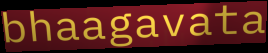
bhaagavata